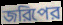
জরিপের